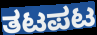
ತಟಪಟ